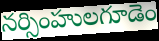
నర్సింహులగూడెం